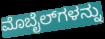
ಮೊಬೈಲ್‌ಗಳನ್ನು